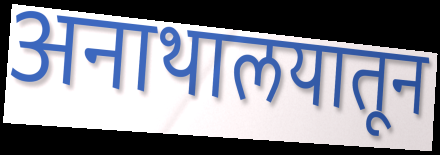
अनाथालयातून